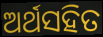
ଅର୍ଥସହିତ